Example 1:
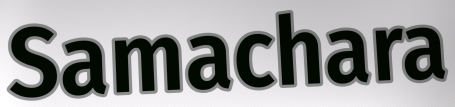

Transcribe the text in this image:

Samachara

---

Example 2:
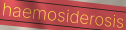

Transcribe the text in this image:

haemosiderosis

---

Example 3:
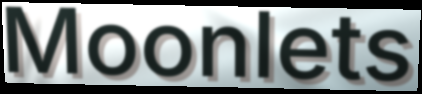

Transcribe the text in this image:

Moonlets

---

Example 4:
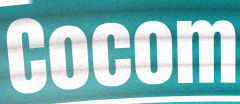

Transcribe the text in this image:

Cocom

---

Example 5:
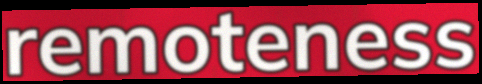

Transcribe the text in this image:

remoteness